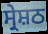
ਸ੍ਰੇਸ਼ਠ